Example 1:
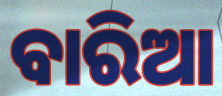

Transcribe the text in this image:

ବାରିଆ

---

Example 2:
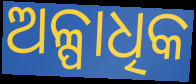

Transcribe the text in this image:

ଅଳ୍ପାଧିକ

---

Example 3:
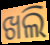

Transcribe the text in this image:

ଖଲି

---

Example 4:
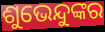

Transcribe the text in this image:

ଶୁଭେନ୍ଦୁଙ୍କର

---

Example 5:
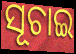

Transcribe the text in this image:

ସୂଚାଇ